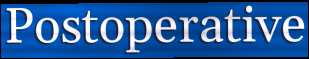
Postoperative